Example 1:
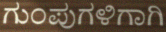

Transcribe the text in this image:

ಗುಂಪುಗಳಿಗಾಗಿ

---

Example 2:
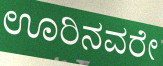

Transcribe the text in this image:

ಊರಿನವರೇ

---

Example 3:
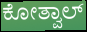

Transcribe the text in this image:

ಕೋತ್ವಾಲ್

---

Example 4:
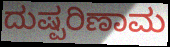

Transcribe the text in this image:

ದುಷ್ಪರಿಣಾಮ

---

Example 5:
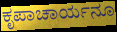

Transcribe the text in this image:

ಕೃಪಾಚಾರ್ಯನೂ